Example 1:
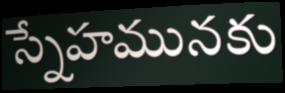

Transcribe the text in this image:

స్నేహమునకు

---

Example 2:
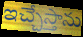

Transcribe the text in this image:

ఇచ్చేస్తాను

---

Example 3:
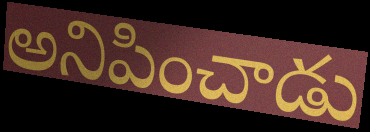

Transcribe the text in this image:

అనిపించాడు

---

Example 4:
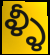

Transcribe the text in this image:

ళ్ళీ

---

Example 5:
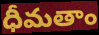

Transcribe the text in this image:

ధీమతాం